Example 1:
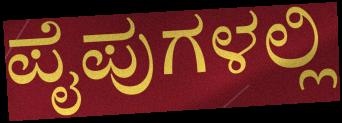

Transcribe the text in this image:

ಪೈಪುಗಳಲ್ಲಿ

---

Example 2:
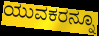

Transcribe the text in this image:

ಯುವಕರನ್ನೂ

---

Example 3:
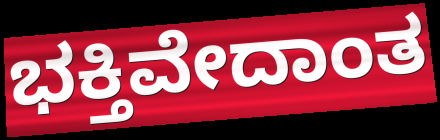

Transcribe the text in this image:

ಭಕ್ತಿವೇದಾಂತ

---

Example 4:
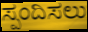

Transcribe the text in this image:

ಸ್ಪಂದಿಸಲು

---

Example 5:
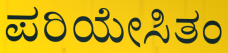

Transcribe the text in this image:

ಪರಿಯೇಸಿತಂ